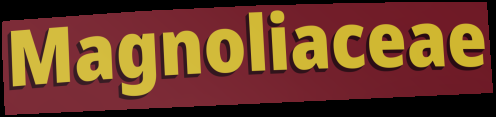
Magnoliaceae